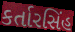
કર્તારસિંહ